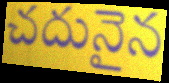
చదునైన